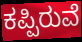
ಕಪ್ಪಿರುವೆ